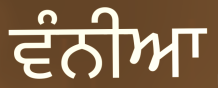
ਵੰਨੀਆ